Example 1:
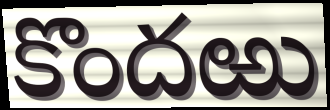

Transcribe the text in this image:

కొందఱు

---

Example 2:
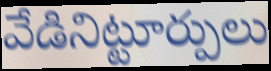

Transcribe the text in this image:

వేడినిట్టూర్పులు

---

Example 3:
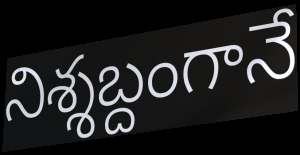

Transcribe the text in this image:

నిశ్శబ్దంగానే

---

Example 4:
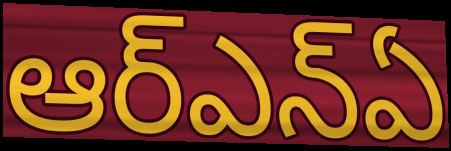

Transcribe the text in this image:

ఆర్ఎన్ఏ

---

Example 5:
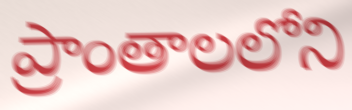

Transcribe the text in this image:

ప్రాంతాలలోని